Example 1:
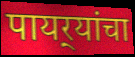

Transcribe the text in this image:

पायर्यांचा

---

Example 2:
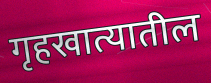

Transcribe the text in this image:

गृहखात्यातील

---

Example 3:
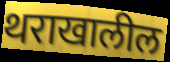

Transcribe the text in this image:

थराखालील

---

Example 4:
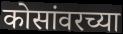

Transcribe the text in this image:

कोसांवरच्या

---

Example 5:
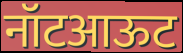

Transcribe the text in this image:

नॉटआऊट